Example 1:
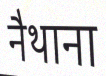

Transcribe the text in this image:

नैथाना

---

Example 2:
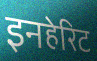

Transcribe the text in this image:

इनहेरिट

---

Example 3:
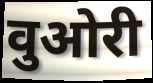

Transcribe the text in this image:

वुओरी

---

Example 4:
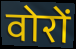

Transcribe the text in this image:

वोरों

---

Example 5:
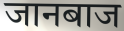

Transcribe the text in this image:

जानबाज